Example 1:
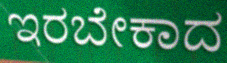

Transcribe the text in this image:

ಇರಬೇಕಾದ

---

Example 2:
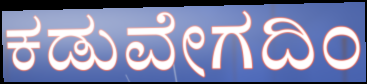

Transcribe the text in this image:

ಕಡುವೇಗದಿಂ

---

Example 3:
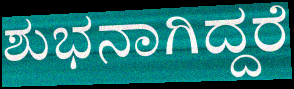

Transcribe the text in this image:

ಶುಭನಾಗಿದ್ದರೆ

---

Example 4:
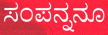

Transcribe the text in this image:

ಸಂಪನ್ನನೂ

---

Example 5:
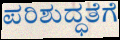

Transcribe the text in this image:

ಪರಿಶುದ್ಧತೆಗೆ